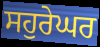
ਸਹੁਰੇਘਰ